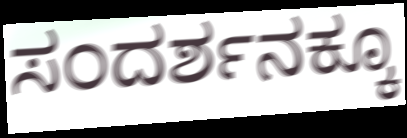
ಸಂದರ್ಶನಕ್ಕೂ